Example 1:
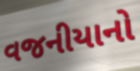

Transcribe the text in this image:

વજનીયાનો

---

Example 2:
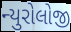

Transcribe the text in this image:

ન્યુરોલોજી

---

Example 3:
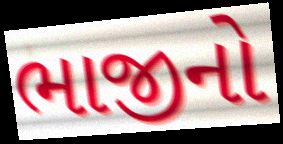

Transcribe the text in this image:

ભાજીનો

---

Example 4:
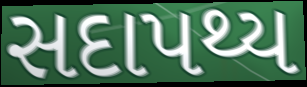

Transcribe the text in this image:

સદાપથ્ય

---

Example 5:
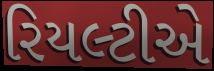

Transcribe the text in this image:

રિયલ્ટીએ